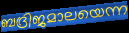
ബദ്രിജമാലയെന്ന